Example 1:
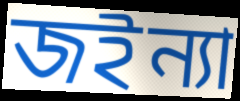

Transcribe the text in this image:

জইন্যা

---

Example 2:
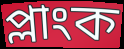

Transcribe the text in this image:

প্লাংক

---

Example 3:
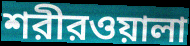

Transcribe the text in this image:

শরীরওয়ালা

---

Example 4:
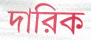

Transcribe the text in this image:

দারিক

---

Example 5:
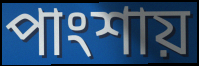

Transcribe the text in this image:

পাংশায়